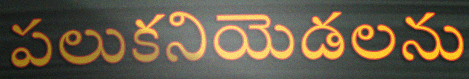
పలుకనియెడలను